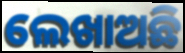
ଲେଖାଅଛି